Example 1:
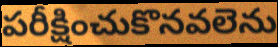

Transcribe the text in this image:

పరీక్షించుకొనవలెను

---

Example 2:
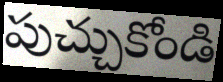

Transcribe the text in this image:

పుచ్చుకోండి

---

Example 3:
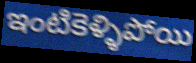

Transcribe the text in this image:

ఇంటికెళ్ళిపోయి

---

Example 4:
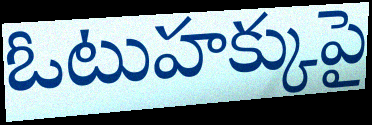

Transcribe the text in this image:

ఓటుహక్కుపై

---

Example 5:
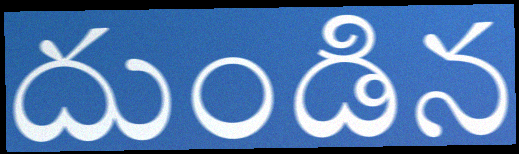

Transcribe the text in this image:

దుండిన